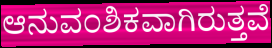
ಆನುವಂಶಿಕವಾಗಿರುತ್ತವೆ